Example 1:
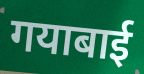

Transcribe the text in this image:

गयाबाई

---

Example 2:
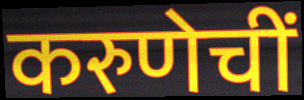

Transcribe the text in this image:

करुणेचीं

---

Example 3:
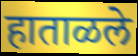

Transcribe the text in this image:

हाताळले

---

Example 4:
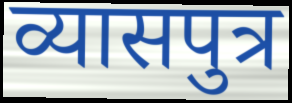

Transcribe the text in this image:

व्यासपुत्र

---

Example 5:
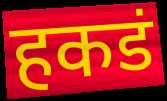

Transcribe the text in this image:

हकडं